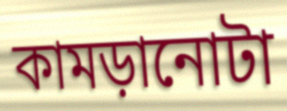
কামড়ানোটা